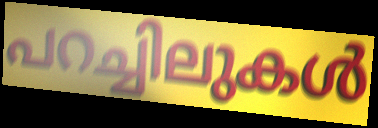
പറച്ചിലുകൾ